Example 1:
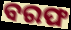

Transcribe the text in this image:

ବରଫ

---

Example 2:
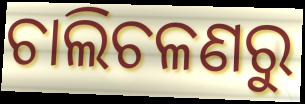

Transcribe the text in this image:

ଚାଲିଚଳଣରୁ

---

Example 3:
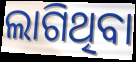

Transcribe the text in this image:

ଲାଗିଥିବା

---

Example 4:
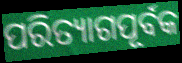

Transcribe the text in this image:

ପରିତ୍ୟାଗପୂର୍ବକ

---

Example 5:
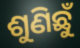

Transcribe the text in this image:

ଶୁଣିଛୁଁ